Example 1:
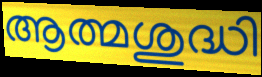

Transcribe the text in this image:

ആത്മശുദ്ധി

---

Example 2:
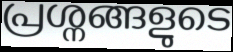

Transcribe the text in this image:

പ്രശ്നങ്ങളുടെ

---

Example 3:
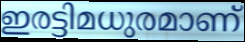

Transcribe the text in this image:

ഇരട്ടിമധുരമാണ്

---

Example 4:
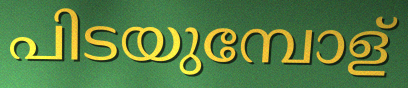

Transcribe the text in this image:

പിടയുമ്പോള്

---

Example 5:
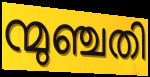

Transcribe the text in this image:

ന്മുഞ്ചതി